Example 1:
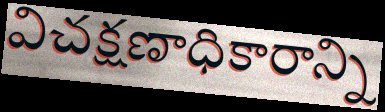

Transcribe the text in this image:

విచక్షణాధికారాన్ని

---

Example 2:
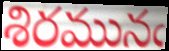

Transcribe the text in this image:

శిరమునఁ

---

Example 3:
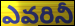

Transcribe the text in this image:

ఎవరినీ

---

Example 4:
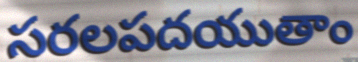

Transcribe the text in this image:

సరలపదయుతాం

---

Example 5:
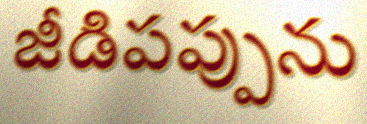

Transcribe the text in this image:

జీడిపప్పును